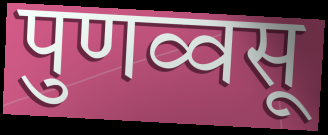
पुणव्वसू